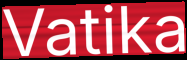
Vatika